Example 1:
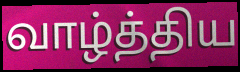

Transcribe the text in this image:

வாழ்த்திய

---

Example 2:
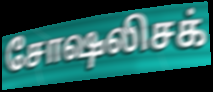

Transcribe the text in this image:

சோஷலிசக்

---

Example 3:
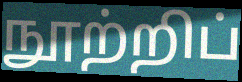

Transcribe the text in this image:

நூற்றிப்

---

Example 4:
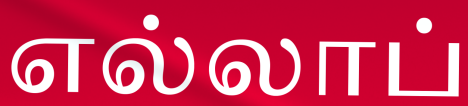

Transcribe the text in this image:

எல்லாப்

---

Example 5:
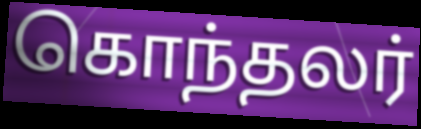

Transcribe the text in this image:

கொந்தலர்